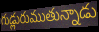
గుడ్లురుముతున్నాడు